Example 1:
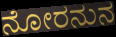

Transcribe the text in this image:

ನೋರನುನ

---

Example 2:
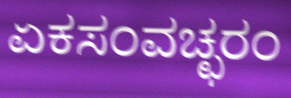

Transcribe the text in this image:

ಏಕಸಂವಚ್ಛರಂ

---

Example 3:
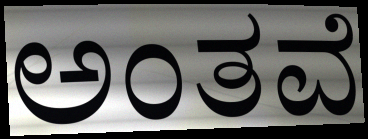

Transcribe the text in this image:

ಅಂತವೆ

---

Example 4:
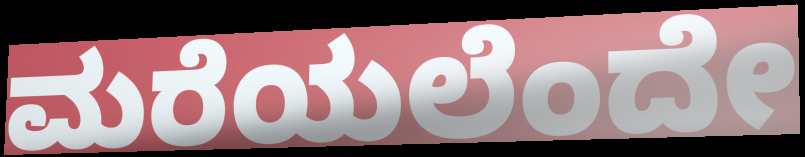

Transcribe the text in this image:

ಮರೆಯಲೆಂದೇ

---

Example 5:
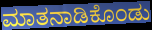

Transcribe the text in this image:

ಮಾತನಾಡಿಕೊಂಡು